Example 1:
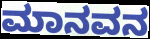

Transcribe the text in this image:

ಮಾನವನ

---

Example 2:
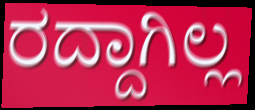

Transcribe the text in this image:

ರದ್ದಾಗಿಲ್ಲ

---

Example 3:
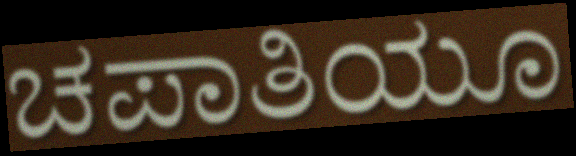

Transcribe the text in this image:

ಚಪಾತಿಯೂ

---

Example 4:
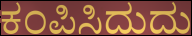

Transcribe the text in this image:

ಕಂಪಿಸಿದುದು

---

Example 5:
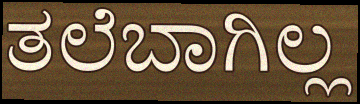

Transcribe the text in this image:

ತಲೆಬಾಗಿಲ್ಲ